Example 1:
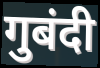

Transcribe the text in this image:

गुबंदी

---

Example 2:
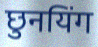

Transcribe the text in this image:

छुनयिंग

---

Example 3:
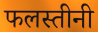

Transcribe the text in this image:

फलस्तीनी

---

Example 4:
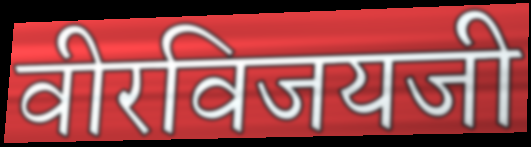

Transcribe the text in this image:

वीरविजयजी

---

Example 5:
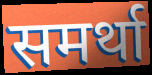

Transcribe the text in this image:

समर्था